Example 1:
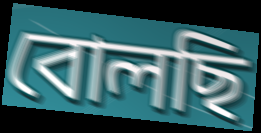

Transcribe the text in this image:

বোলছি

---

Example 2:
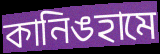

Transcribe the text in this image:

কানিঙহামে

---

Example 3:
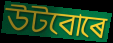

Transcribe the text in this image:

উটবোৰে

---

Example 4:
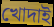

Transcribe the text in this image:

খোদাই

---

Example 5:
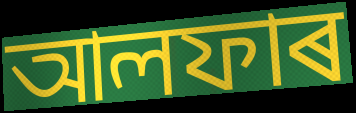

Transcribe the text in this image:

আলফাৰ